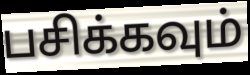
பசிக்கவும்